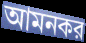
আমনকর